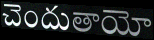
చెందుతాయో